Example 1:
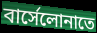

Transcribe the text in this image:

বার্সেলোনাতে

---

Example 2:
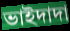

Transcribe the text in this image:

ভাইদাদা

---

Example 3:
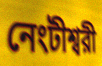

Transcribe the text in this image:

নেংটীশ্বরী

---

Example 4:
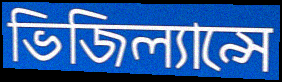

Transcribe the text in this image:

ভিজিল্যান্সে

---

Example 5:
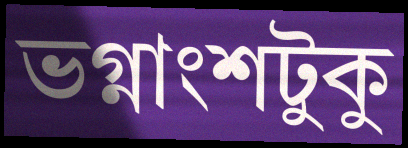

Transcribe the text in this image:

ভগ্নাংশটুকু